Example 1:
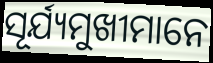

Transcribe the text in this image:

ସୂର୍ଯ୍ୟମୁଖୀମାନେ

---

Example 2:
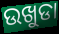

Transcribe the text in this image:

ଉଖୁଡା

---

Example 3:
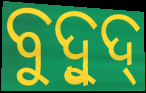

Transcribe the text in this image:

ବୁଦ୍ବୁଦ୍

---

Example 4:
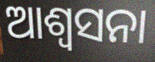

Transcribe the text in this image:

ଆଶ୍ୱସନା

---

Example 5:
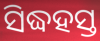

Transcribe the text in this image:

ସିଦ୍ଧହସ୍ତ